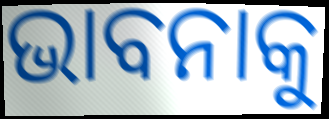
ଭାବନାକୁ